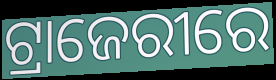
ଟ୍ରାଜେରୀରେ